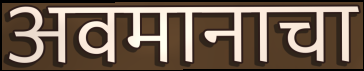
अवमानाचा